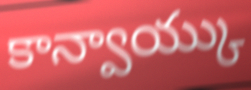
కాన్వాయ్కు